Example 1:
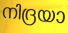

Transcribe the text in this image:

നിദ്രയാ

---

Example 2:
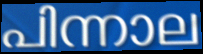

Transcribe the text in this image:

പിന്നാല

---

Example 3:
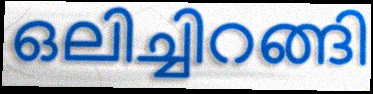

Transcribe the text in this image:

ഒലിച്ചിറങ്ങി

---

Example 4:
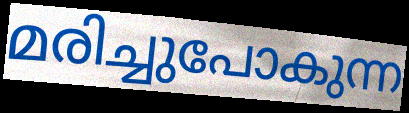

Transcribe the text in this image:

മരിച്ചുപോകുന്ന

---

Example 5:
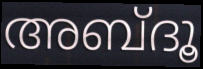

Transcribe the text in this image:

അബ്ദൂ